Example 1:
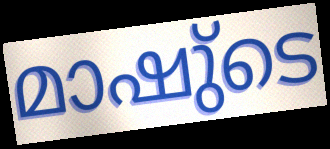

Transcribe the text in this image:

മാഷു്ടെ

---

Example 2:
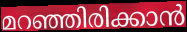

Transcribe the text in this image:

മറഞ്ഞിരിക്കാൻ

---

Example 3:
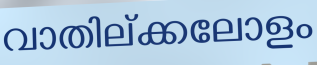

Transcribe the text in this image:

വാതില്ക്കലോളം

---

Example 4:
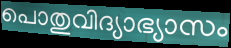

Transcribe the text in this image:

പൊതുവിദ്യാഭ്യാസം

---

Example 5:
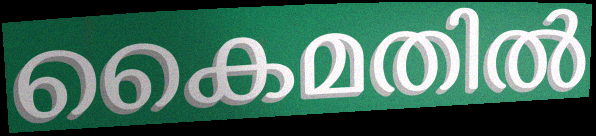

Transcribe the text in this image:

കൈമതിൽ